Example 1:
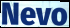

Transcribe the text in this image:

Nevo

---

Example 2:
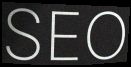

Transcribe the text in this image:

SEO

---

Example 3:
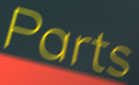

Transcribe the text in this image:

Parts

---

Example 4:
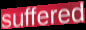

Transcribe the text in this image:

suffered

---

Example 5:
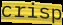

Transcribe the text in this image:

crisp